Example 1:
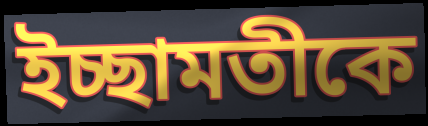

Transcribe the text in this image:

ইচ্ছামতীকে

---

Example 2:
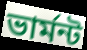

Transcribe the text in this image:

ভার্মন্ট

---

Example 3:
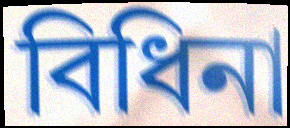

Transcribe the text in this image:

বিধিনা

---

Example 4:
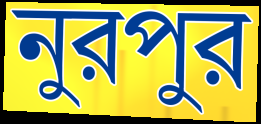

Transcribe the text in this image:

নুরপুর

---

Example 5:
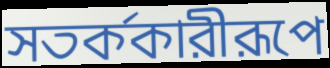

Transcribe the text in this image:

সতর্ককারীরূপে